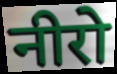
नीरो